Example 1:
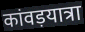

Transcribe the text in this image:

कांवड़यात्रा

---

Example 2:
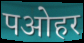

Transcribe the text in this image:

पओहर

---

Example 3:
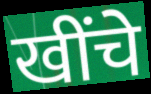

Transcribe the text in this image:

खींचे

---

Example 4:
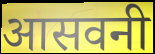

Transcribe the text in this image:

आसवनी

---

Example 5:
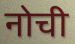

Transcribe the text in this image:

नोची